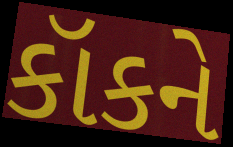
કૉકને